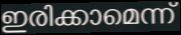
ഇരിക്കാമെന്ന്